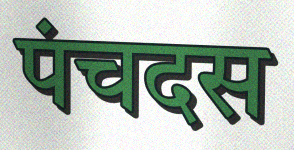
पंचदस